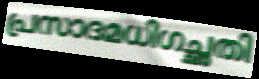
പ്രസാദമധിഗച്ഛതി